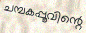
ചമ്പകപ്പൂവിന്റെ